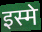
इस्मे